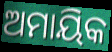
ଅମାୟିକ